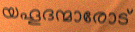
യഹൂദന്മാരോട്